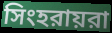
সিংহরায়রা